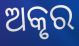
ଅକୃର